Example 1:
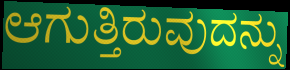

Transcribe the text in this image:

ಆಗುತ್ತಿರುವುದನ್ನು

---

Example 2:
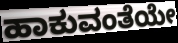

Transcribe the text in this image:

ಹಾಕುವಂತೆಯೇ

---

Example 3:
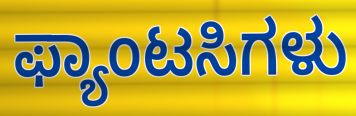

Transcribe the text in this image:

ಫ್ಯಾಂಟಸಿಗಳು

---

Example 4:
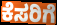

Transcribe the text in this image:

ಕೆಸರಿಗೆ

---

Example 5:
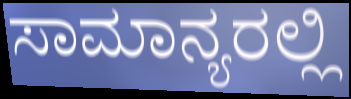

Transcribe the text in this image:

ಸಾಮಾನ್ಯರಲ್ಲಿ